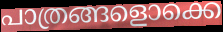
പാത്രങ്ങളൊക്കെ